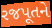
રજપૂતને